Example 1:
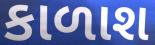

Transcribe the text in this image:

કાળાશ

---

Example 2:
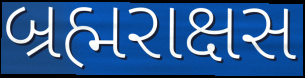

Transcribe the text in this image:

બ્રહ્મરાક્ષસ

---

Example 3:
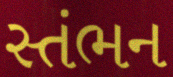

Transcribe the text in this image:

સ્તંભન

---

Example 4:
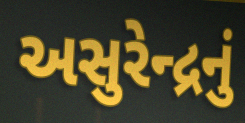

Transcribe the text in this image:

અસુરેન્દ્રનું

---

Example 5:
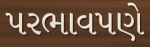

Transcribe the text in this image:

પરભાવપણે